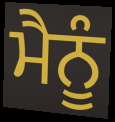
ਮੈਨੂੰ